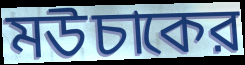
মউচাকের